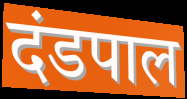
दंडपाल